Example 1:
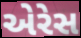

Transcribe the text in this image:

એરેસ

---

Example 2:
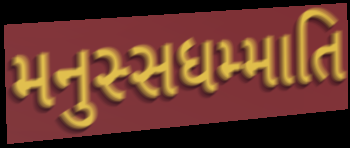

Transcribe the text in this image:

મનુસ્સધમ્માતિ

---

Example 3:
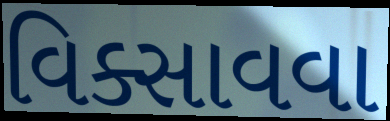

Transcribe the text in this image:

વિક્સાવવા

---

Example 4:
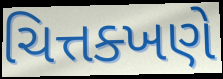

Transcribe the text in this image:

ચિત્તક્ખણે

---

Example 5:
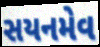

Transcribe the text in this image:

સયનમેવ